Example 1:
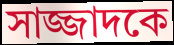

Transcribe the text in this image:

সাজ্জাদকে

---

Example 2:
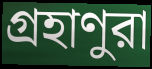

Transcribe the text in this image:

গ্রহাণুরা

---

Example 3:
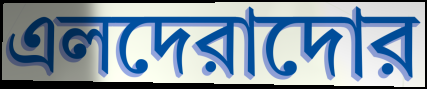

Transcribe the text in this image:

এলদেরাদোর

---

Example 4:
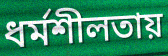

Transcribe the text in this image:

ধর্মশীলতায়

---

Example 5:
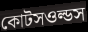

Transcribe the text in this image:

কোটসওল্ডস